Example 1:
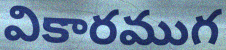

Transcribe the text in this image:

వికారముగ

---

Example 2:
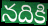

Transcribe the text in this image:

నదికి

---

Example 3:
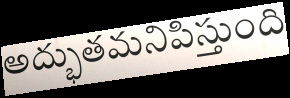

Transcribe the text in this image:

అద్భుతమనిపిస్తుంది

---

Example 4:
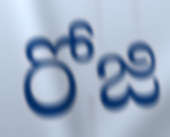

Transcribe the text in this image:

రోజి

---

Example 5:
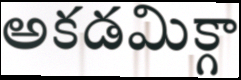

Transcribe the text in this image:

అకడమిక్గా